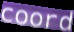
coord